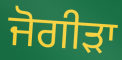
ਜੋਗੀੜਾ